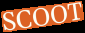
SCOOT